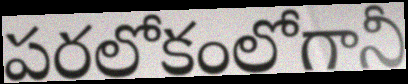
పరలోకంలోగానీ